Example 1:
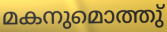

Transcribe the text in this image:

മകനുമൊത്തു്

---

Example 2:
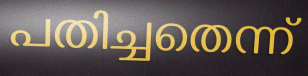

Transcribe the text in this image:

പതിച്ചതെന്ന്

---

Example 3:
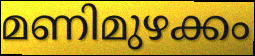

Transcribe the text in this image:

മണിമുഴക്കം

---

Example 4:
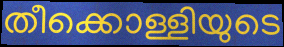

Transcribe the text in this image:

തീക്കൊള്ളിയുടെ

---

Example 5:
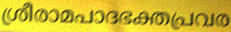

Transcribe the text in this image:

ശ്രീരാമപാദഭക്തപ്രവര